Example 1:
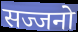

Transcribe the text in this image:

सज्जनो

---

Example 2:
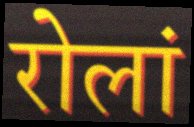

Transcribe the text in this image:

रोलां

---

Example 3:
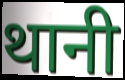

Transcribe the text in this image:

थानी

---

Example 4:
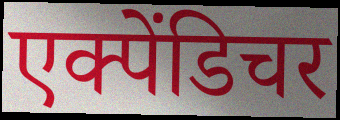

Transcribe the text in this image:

एक्पेंडिचर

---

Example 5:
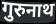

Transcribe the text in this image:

गुरुनाथ